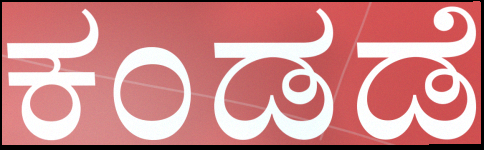
ಕಂಡಡೆ